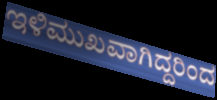
ಇಳಿಮುಖವಾಗಿದ್ದರಿಂದ